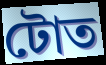
টোত